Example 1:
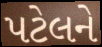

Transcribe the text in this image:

પટેલને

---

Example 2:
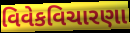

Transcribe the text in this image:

વિવેકવિચારણા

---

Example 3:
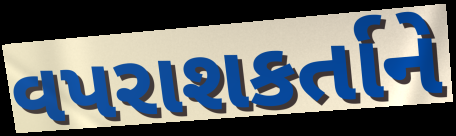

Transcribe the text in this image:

વપરાશકર્તાને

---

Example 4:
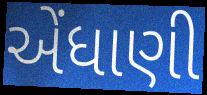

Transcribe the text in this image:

એંધાણી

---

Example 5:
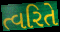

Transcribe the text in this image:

ત્વરિતે